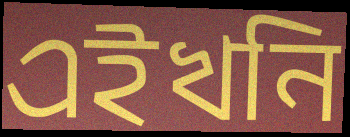
এইখনি